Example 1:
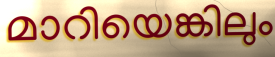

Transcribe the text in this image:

മാറിയെങ്കിലും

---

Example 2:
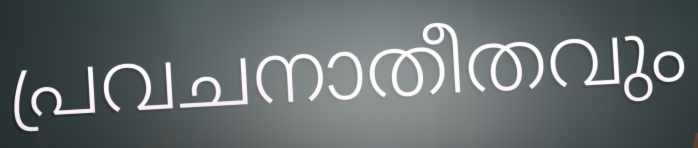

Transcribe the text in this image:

പ്രവചനാതീതവും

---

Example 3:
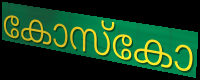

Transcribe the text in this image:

കോസ്കോ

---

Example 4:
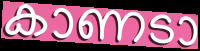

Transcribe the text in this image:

കാണടാ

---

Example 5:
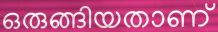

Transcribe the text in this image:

ഒരുങ്ങിയതാണ്